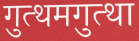
गुत्थमगुत्था